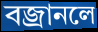
বজ্রানলে